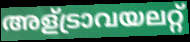
അള്ട്രാവയലറ്റ്